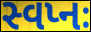
સ્વપ્નઃ